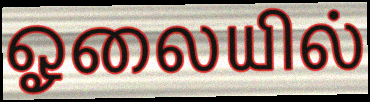
ஓலையில்